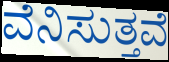
ವೆನಿಸುತ್ತವೆ